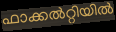
ഫാക്കൽറ്റിയിൽ